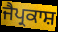
ਜੈਪ੍ਰਕਾਸ਼